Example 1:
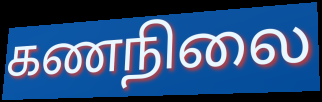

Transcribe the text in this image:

கணநிலை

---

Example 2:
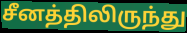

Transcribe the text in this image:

சீனத்திலிருந்து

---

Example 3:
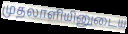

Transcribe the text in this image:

முதலாளியினுடைய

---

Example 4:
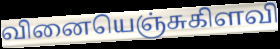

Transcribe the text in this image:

வினையெஞ்சுகிளவி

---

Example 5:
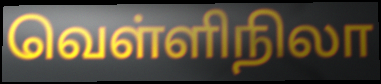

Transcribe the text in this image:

வெள்ளிநிலா